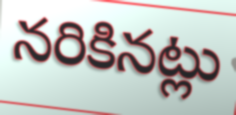
నరికినట్లు